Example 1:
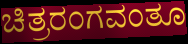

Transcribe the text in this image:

ಚಿತ್ರರಂಗವಂತೂ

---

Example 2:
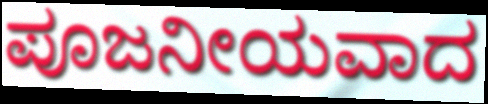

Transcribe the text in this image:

ಪೂಜನೀಯವಾದ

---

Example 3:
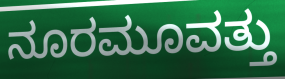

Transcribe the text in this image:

ನೂರಮೂವತ್ತು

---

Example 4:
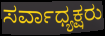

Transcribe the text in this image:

ಸರ್ವಾಧ್ಯಕ್ಷರು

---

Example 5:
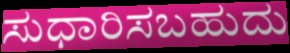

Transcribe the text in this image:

ಸುಧಾರಿಸಬಹುದು